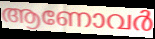
ആണോവർ